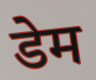
डेम